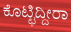
ಕೊಟ್ಟಿದ್ದೀರಾ